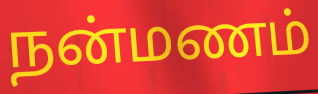
நன்மணம்